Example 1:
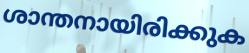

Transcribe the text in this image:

ശാന്തനായിരിക്കുക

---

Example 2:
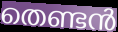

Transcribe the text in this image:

തെണ്ടൻ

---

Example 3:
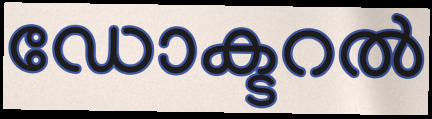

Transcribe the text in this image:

ഡോക്ടറൽ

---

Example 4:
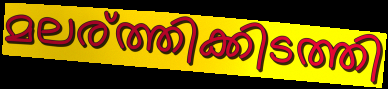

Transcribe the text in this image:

മലര്ത്തിക്കിടത്തി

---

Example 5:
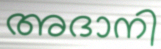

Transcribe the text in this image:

അദാനി